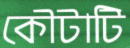
কৌটাটি